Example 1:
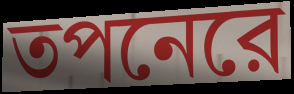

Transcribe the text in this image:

তপনেরে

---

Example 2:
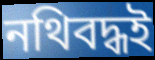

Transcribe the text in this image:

নথিবদ্ধই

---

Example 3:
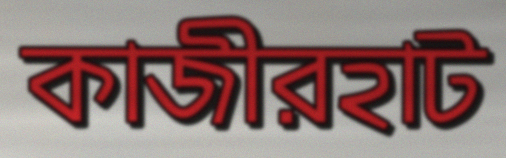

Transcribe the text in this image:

কাজীরহাট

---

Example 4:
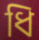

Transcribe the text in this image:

ধি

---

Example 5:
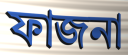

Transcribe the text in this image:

ফাজনা